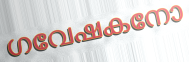
ഗവേഷകനോ